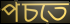
পচতে